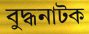
বুদ্ধনাটক